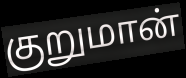
குறுமான்